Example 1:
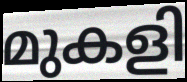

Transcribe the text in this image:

മുകളി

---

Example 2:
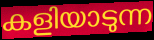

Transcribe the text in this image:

കളിയാടുന്ന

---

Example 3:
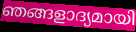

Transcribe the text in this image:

ഞങ്ങളാദ്യമായി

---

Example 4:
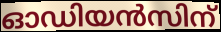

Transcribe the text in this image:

ഓഡിയൻസിന്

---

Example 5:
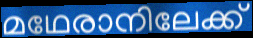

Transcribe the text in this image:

മഥേരാനിലേക്ക്